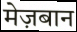
मेज़बान